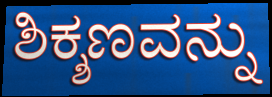
ಶಿಕ್ಶಣವನ್ನು